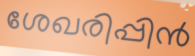
ശേഖരിപ്പിൻ